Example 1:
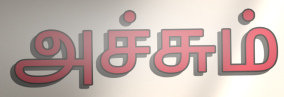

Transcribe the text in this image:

அச்சும்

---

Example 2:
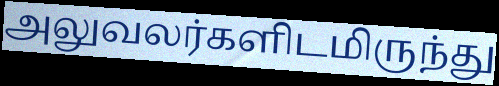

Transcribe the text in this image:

அலுவலர்களிடமிருந்து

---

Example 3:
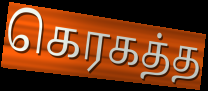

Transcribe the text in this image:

கெரகத்த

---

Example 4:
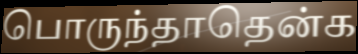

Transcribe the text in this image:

பொருந்தாதென்க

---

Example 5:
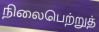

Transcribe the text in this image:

நிலைபெற்றுத்